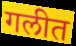
गलीत